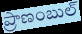
ప్రాణంబుల్